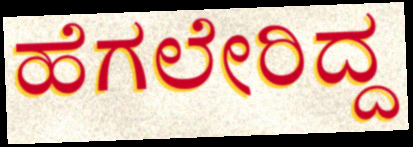
ಹೆಗಲೇರಿದ್ದ